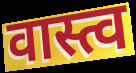
वास्त्व